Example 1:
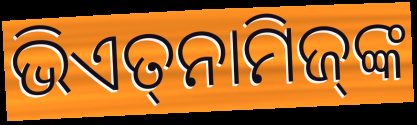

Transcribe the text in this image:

ଭିଏତ୍‌ନାମିଜ୍‌ଙ୍କ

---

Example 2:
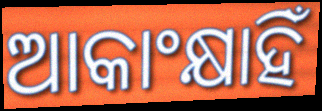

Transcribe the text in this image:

ଆକାଂକ୍ଷାହିଁ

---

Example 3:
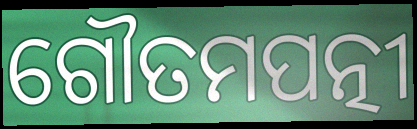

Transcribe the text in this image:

ଗୌତମପତ୍ନୀ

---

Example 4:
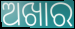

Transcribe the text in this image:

ଅଖାର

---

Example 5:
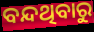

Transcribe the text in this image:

ବନ୍ଦଥିବାରୁ